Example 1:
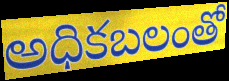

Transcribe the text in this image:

అధికబలంతో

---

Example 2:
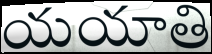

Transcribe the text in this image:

యయాతి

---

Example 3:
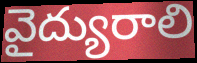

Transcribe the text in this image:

వైద్యురాలి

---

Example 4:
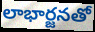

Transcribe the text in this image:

లాభార్జనతో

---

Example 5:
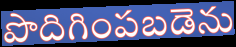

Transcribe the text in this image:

పొదిగింపబడెను